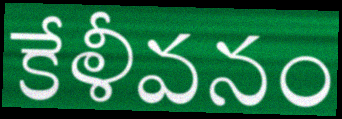
కేళీవనం